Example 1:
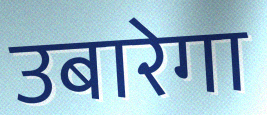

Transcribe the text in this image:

उबारेगा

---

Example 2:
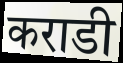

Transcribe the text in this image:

कराडी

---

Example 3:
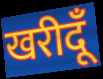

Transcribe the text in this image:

खरीदूँ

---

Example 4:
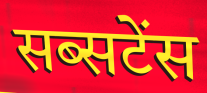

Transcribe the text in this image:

सब्सटेंस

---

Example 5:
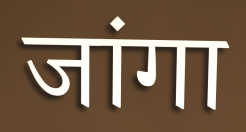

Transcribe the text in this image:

जांगा